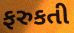
ફરુકતી